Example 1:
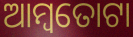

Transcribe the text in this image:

ଆମ୍ବତୋଟା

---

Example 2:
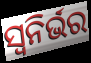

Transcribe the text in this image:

ସ୍ୱନିର୍ଭର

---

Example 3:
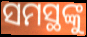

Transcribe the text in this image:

ସମସ୍ଥଙ୍କୁ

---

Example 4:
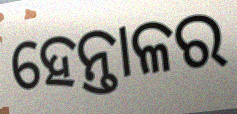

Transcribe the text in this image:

ହେନ୍ତାଳର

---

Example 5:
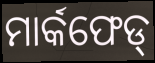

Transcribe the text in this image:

ମାର୍କଫେଡ୍